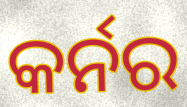
କର୍ନର